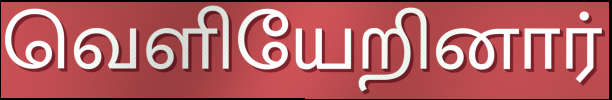
வெளியேறினார்